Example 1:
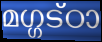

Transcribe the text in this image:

മഗ്ഗട്ഠാ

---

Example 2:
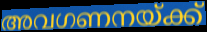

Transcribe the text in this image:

അവഗണനയ്ക്ക്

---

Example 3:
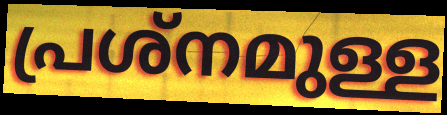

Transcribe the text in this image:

പ്രശ്നമുള്ള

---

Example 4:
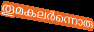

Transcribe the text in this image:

തൂമകലർന്നൊരു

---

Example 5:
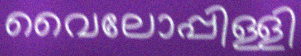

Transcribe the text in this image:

വൈലോപ്പിള്ളി